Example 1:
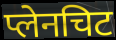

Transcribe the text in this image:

प्लेनचिट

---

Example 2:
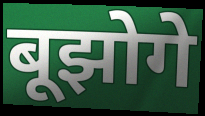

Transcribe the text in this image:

बूझोगे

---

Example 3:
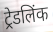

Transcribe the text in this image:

ट्रेडलिंक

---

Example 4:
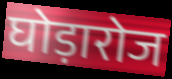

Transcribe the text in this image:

घोड़ारोज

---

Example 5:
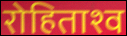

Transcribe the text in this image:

रोहिताश्व